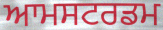
ਆਮਸਟਰਡਮ